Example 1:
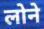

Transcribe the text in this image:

लोने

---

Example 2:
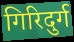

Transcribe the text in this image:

गिरिदुर्ग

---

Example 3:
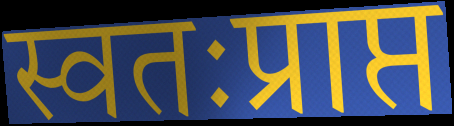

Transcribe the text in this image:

स्वतःप्राप्त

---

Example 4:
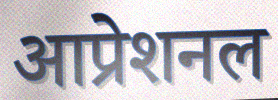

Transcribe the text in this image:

आप्रेशनल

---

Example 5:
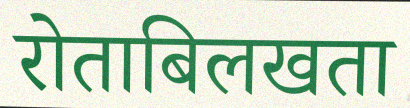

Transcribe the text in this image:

रोताबिलखता